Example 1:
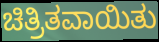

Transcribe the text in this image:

ಚಿತ್ರಿತವಾಯಿತು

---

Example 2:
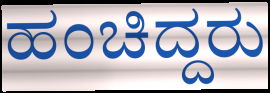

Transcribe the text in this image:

ಹಂಚಿದ್ದರು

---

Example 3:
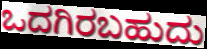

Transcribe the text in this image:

ಒದಗಿರಬಹುದು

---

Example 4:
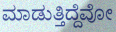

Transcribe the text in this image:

ಮಾಡುತ್ತಿದ್ದೆವೋ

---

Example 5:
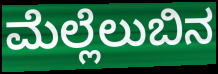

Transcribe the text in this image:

ಮೆಲ್ಲೆಲುಬಿನ